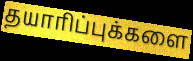
தயாரிப்புக்களை